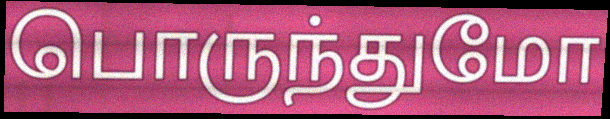
பொருந்துமோ